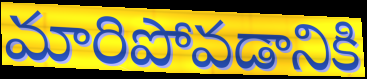
మారిపోవడానికి